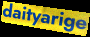
daityarige